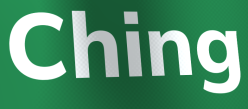
Ching